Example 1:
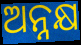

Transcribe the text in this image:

ଅନ୍ନକ୍ଷ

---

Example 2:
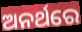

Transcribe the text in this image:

ଅନର୍ଥରେ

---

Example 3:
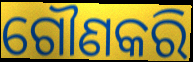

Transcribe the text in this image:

ଗୌଣକରି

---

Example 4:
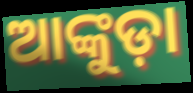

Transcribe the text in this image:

ଆଙ୍କୁଡ଼ା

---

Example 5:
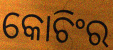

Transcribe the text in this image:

କୋଚିଂର